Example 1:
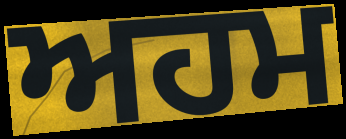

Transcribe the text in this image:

ਅਹਮ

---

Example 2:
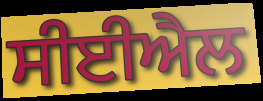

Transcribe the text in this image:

ਸੀਈਐਲ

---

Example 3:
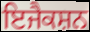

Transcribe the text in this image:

ਇਜੈਕਸ਼ਨ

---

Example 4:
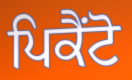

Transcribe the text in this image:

ਪਿਕੈਂਟੋ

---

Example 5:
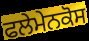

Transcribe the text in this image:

ਫਲੇਮੇਨਕੋਸ